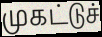
முகட்டுச்